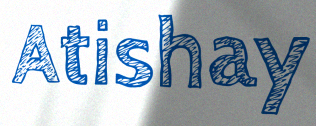
Atishay